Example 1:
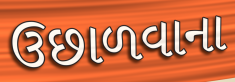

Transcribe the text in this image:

ઉછાળવાના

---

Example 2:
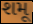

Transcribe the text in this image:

શમૂ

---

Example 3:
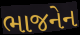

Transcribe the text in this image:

ભાજનેન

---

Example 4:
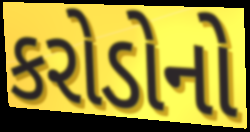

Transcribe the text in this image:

કરોડોનો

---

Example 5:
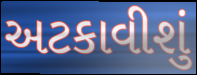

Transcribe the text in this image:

અટકાવીશું